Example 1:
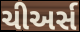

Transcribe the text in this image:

ચીઅર્સ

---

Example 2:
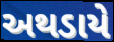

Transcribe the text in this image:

અથડાયે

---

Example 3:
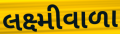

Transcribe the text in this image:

લક્ષ્મીવાળા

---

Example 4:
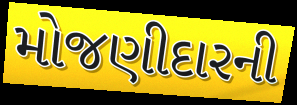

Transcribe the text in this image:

મોજણીદારની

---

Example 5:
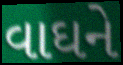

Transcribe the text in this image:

વાઘને